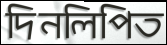
দিনলিপিত